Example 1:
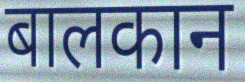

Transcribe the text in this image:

बालकान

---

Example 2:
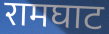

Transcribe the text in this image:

रामघाट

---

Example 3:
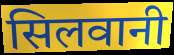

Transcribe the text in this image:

सिलवानी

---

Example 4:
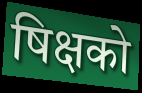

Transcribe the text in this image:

षिक्षको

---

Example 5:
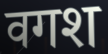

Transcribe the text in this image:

वगश